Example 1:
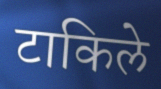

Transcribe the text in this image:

टाकिले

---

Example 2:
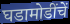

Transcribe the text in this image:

घडामोडींचें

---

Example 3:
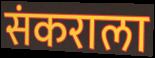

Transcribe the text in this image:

संकराला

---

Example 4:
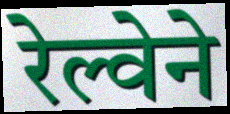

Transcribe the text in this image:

रेल्वेने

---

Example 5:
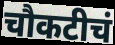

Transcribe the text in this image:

चौकटीचं